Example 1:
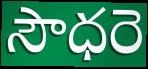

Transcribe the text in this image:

సౌధరె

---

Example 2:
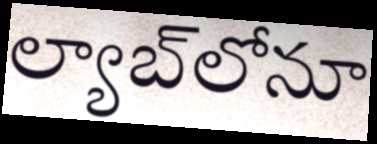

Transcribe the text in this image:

ల్యాబ్‌లోనూ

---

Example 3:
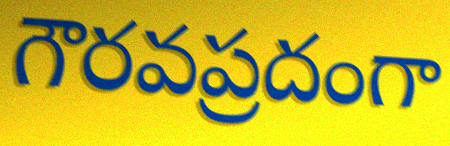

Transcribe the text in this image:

గౌరవప్రదంగా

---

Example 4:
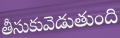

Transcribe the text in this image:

తీసుకువెడుతుంది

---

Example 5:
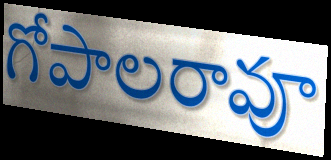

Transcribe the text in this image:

గోపాలరావూ